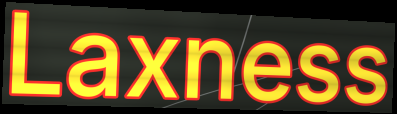
Laxness